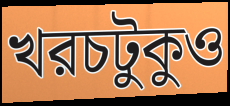
খরচটুকুও